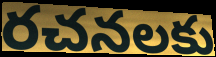
రచనలకు